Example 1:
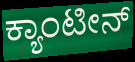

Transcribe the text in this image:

ಕ್ಯಾಂಟೀನ್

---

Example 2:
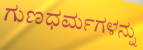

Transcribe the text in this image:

ಗುಣಧರ್ಮಗಳನ್ನು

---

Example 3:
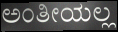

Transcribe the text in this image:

ಅಂತೀಯಲ್ಲ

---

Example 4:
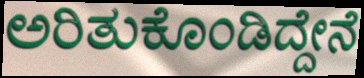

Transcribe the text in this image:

ಅರಿತುಕೊಂಡಿದ್ದೇನೆ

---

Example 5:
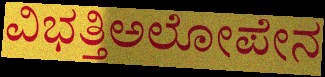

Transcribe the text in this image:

ವಿಭತ್ತಿಅಲೋಪೇನ